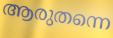
ആരുതന്നെ